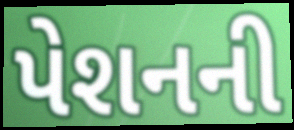
પેશનની